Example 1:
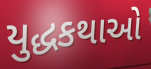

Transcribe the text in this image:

યુદ્ધકથાઓ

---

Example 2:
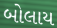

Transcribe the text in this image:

બોલાય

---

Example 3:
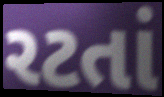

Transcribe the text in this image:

રટતાં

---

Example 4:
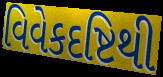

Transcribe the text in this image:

વિવેકદષ્ટિથી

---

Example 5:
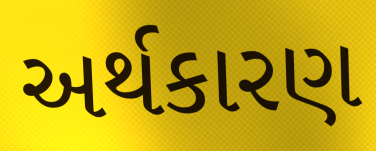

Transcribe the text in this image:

અર્થકારણ